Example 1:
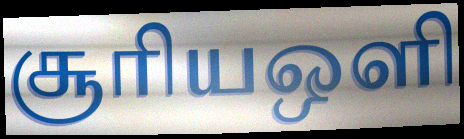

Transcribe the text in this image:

சூரியஒளி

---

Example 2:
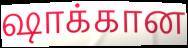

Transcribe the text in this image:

ஷாக்கான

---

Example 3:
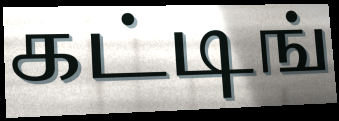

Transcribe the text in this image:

கட்டிங்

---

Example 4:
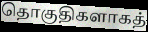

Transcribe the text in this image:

தொகுதிகளாகத்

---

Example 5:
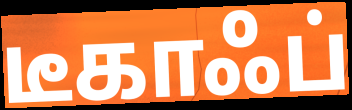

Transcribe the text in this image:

டீகாஃப்